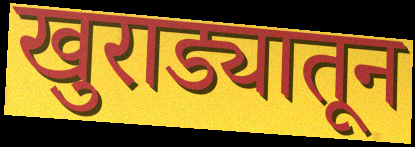
खुराड्यातून